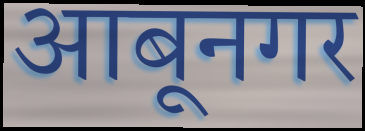
आबूनगर